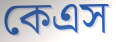
কেএস